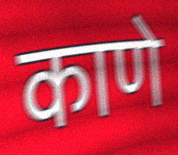
काणे